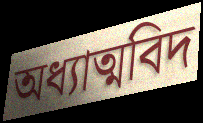
অধ্যাত্মবিদ